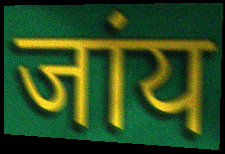
जांय